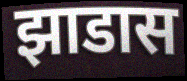
झाडास